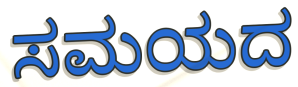
ಸಮಯದ